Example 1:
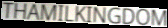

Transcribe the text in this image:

THAMILKINGDOM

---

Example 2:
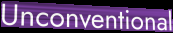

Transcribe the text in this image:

Unconventional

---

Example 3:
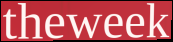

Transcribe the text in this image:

theweek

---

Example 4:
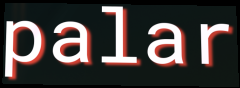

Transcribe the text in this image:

palar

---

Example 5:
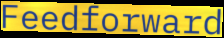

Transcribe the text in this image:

Feedforward